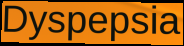
Dyspepsia